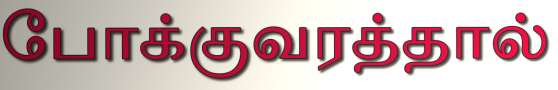
போக்குவரத்தால்